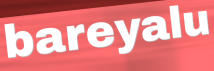
bareyalu